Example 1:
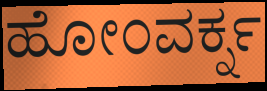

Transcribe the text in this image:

ಹೋಂವರ್ಕ್ನ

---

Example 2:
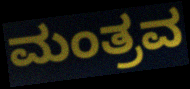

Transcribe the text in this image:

ಮಂತ್ರವ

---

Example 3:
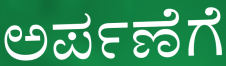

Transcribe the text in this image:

ಅರ್ಪಣೆಗೆ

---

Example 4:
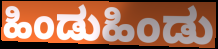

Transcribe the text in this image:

ಹಿಂಡುಹಿಂಡು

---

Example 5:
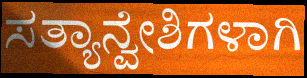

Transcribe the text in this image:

ಸತ್ಯಾನ್ವೇಶಿಗಳಾಗಿ